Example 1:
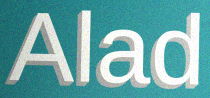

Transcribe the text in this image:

Alad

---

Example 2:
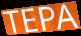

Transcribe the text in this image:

TEPA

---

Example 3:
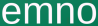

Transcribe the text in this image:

emno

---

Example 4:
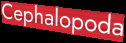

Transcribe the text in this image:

Cephalopoda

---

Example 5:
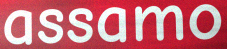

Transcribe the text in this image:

assamo